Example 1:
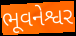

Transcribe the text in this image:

ભૂવનેશ્વર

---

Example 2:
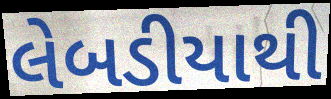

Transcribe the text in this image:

લેબડીયાથી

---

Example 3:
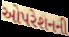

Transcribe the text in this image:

ઓપરેશનની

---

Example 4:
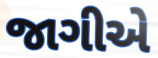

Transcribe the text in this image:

જાગીએ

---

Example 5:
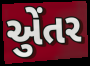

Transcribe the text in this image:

એુંતર